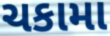
ચકામા